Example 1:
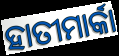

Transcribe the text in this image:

ହାତୀମାର୍କା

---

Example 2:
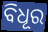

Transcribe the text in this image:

ବିଧୂର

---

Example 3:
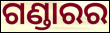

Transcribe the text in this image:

ଗଣ୍ଡାରର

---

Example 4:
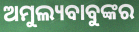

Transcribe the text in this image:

ଅମୁଲ୍ୟବାବୁଙ୍କର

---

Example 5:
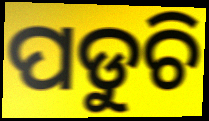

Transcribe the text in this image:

ପଡୁଚି